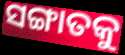
ସଙ୍ଗାତକୁ